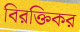
বিরক্তিকর